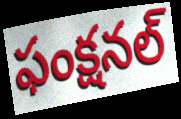
ఫంక్షనల్